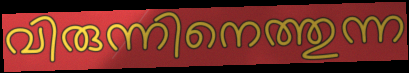
വിരുന്നിനെത്തുന്ന